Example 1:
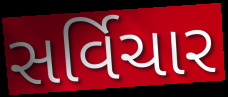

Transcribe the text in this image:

સર્વિચાર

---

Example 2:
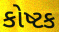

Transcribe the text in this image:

કોષ્ટક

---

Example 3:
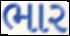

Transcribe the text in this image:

ભાર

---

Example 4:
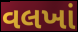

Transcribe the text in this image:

વલખાં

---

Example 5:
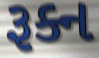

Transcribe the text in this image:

રૂક્ન